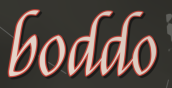
boddo